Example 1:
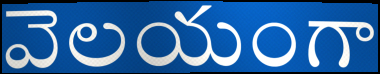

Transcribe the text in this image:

వెలయంగా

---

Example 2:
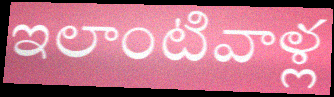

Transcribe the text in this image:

ఇలాంటివాళ్ల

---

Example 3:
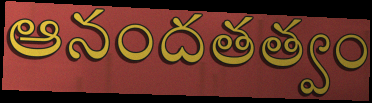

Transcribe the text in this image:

ఆనందతత్వం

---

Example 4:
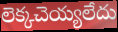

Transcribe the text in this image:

లెక్కచెయ్యలేదు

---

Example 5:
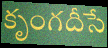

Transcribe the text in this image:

కృంగదీసే